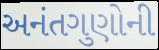
અનંતગુણોની